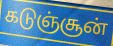
கடுஞ்சூன்